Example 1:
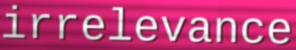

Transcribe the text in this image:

irrelevance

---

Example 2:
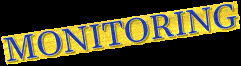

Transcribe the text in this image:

MONITORING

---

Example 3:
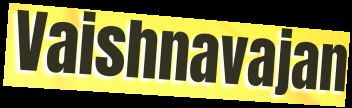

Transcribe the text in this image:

Vaishnavajan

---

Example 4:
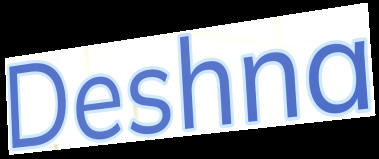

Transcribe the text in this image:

Deshna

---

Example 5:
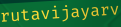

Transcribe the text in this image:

rutavijayarv